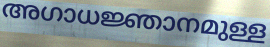
അഗാധജ്ഞാനമുള്ള